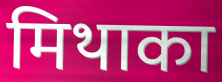
मिथाका